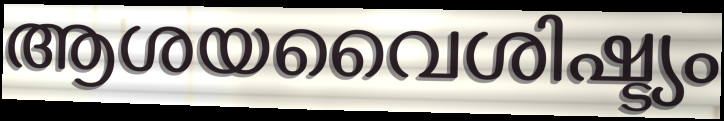
ആശയവൈശിഷ്ട്യം